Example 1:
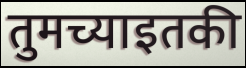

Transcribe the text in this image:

तुमच्याइतकी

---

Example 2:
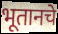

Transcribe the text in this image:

भूतानचे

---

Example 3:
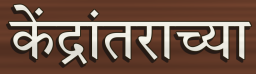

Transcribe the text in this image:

केंद्रांतराच्या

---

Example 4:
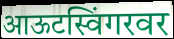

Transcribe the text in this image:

आऊटस्विंगरवर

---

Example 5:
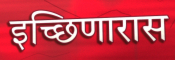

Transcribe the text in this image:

इच्छिणारास